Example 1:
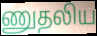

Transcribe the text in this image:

ணுதலிய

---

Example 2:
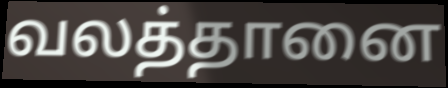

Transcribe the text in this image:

வலத்தானை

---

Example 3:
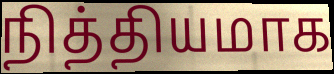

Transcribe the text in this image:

நித்தியமாக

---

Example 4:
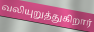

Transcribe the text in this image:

வலியுறுத்துகிறார்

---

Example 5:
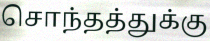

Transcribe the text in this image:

சொந்தத்துக்கு